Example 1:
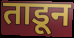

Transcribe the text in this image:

ताडून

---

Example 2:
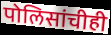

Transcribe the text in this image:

पोलिसांचीही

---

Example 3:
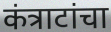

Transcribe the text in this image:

कंत्राटांचा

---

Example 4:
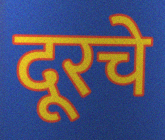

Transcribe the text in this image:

दूरचे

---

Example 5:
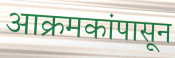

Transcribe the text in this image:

आक्रमकांपासून